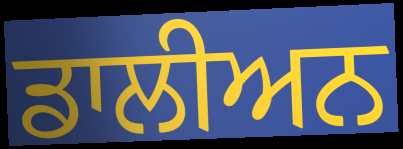
ਡਾਲੀਅਨ